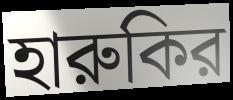
হারুকির